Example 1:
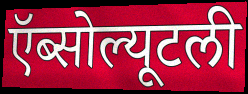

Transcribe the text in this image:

ऍब्सोल्यूटली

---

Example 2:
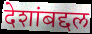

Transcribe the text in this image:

देशांबद्दल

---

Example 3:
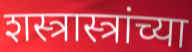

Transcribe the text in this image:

शस्त्रास्त्रांच्या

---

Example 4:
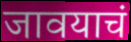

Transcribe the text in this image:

जावयाचं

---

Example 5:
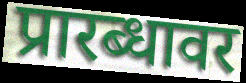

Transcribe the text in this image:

प्रारब्धावर